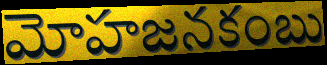
మోహజనకంబు